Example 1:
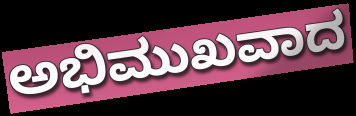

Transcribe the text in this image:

ಅಭಿಮುಖವಾದ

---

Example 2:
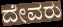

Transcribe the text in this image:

ದೇವರು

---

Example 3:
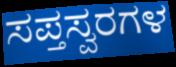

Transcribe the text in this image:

ಸಪ್ತಸ್ವರಗಳ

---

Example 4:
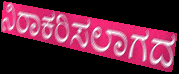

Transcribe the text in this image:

ನಿರಾಕರಿಸಲಾಗದ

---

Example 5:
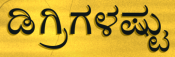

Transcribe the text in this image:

ಡಿಗ್ರಿಗಳಷ್ಟು